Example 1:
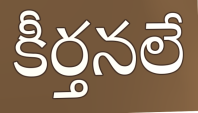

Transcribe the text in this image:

కీర్తనలే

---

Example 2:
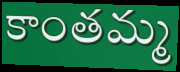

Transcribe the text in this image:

కాంతమ్మ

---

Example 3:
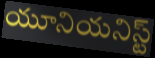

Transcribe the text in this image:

యూనియనిస్ట్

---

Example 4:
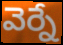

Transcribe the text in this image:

వెర్నే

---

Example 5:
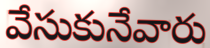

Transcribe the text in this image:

వేసుకునేవారు